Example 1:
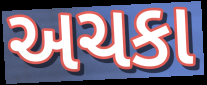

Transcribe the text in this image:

અચકા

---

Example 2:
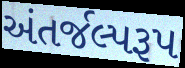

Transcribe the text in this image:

અંતર્જલ્પરૂપ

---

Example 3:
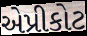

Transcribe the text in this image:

એપ્રીકોટ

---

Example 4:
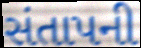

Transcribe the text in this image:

સંતાપની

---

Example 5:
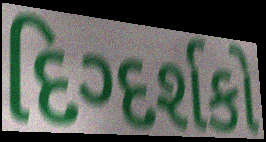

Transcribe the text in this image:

દિગ્દર્શકો